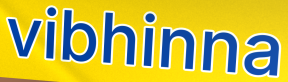
vibhinna